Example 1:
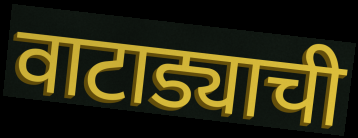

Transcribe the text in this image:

वाटाड्याची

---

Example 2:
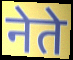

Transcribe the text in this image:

नेते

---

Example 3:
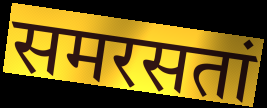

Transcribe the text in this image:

समरसतां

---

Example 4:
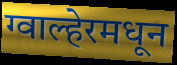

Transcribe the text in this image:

ग्वाल्हेरमधून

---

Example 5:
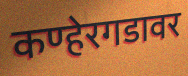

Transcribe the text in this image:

कण्हेरगडावर